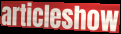
articleshow